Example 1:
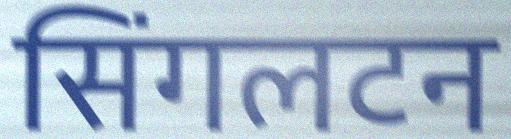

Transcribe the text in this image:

सिंगलटन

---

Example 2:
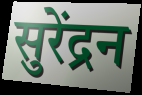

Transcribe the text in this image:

सुरेंद्रन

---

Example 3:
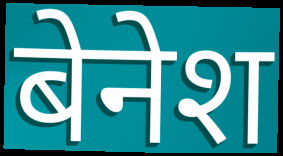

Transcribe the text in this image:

बेनेश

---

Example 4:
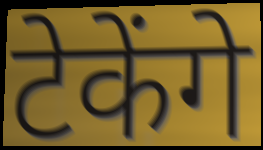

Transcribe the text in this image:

टेकेंगे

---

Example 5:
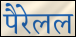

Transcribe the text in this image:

पैरेलल